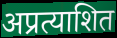
अप्रत्याशित